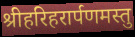
श्रीहरिहरार्पणमस्तु